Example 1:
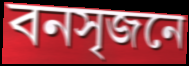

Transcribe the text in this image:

বনসৃজনে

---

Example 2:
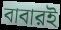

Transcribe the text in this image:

বাবারই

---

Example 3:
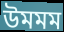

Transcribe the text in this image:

উমমম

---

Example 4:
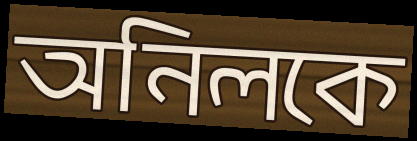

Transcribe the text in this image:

অনিলকে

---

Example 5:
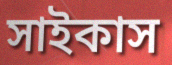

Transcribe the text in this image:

সাইকাস